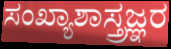
ಸಂಖ್ಯಾಶಾಸ್ತ್ರಜ್ಞರ